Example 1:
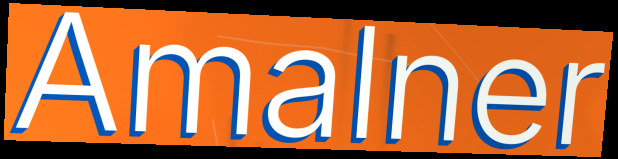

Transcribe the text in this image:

Amalner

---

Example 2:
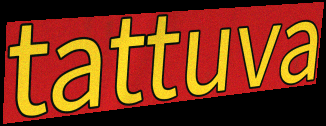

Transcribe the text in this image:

tattuva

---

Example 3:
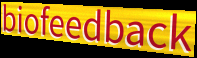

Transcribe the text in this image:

biofeedback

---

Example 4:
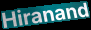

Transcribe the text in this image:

Hiranand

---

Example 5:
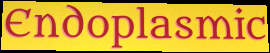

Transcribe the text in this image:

Endoplasmic